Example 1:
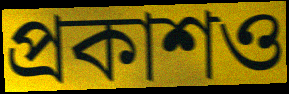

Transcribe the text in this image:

প্রকাশও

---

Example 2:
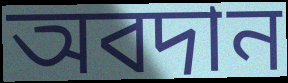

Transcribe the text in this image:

অবদান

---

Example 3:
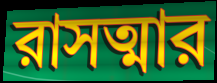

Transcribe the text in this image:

রাসত্মার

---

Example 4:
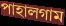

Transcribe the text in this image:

পাহালগাম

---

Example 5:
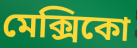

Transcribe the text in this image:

মেক্সিকো